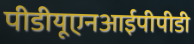
पीडीयूएनआईपीपीडी